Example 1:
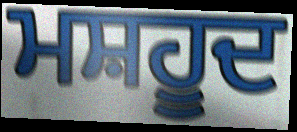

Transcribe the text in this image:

ਮਸ਼ਹੂਦ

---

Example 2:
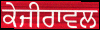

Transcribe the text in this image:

ਕੇਜੀਰਾਵਲ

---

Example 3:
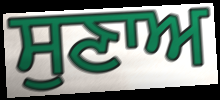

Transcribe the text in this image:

ਸੁਣਾਅ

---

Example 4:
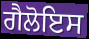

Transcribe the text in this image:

ਗੈਲੋਇਸ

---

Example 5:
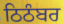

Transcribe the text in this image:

ਠਿਠੰਬਰ